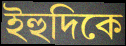
ইহুদিকে